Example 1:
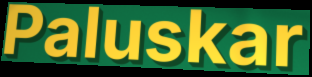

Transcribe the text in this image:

Paluskar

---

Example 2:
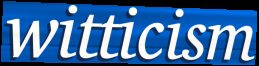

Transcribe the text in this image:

witticism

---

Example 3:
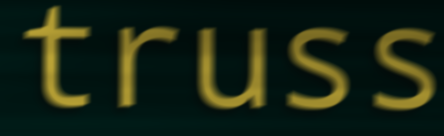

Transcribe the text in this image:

truss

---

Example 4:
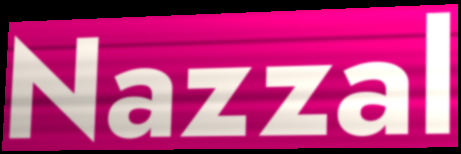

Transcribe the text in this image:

Nazzal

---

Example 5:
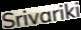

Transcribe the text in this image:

Srivariki